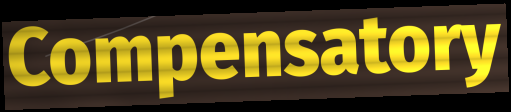
Compensatory